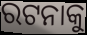
ରଟନାକୁ